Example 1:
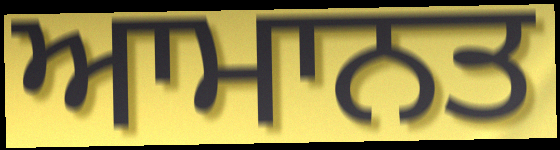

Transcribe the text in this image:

ਆਮਾਨਤ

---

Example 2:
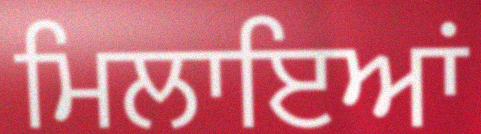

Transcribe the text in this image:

ਮਿਲਾਇਆਂ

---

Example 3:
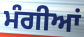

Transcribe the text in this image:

ਮੰਗੀਆਂ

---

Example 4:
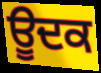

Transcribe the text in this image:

ਊਦਕ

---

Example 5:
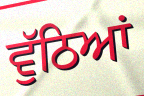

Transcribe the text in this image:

ਵੁੱਠਿਆਂ